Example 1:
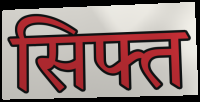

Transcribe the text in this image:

सिफ्त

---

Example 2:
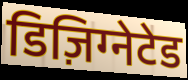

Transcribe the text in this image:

डिज़िग्नेटेड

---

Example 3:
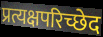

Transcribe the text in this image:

प्रत्यक्षपरिच्छेद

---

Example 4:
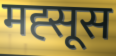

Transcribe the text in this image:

मह्सूस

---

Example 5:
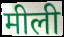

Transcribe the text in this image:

मीली